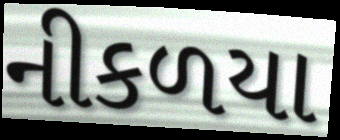
નીકળયા